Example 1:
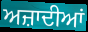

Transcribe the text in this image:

ਅਜ਼ਾਦੀਆਂ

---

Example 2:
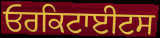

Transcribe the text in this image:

ਓਰਕਿਟਾਈਟਸ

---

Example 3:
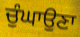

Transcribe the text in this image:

ਚੁੰਘਾਉਣਾ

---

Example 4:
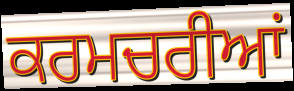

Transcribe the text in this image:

ਕਰਮਚਰੀਆਂ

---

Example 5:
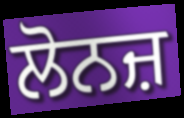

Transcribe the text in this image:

ਲੋਨਜ਼